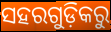
ସହରଗୁଡ଼ିକରୁ